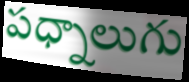
పధ్నాలుగు